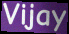
Vijay